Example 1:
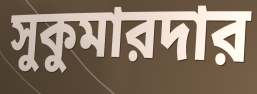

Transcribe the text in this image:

সুকুমারদার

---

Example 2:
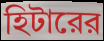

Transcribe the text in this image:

হিটারের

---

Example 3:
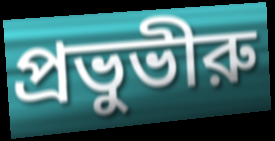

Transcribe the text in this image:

প্রভুভীরু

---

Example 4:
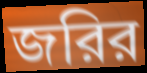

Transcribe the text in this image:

জরির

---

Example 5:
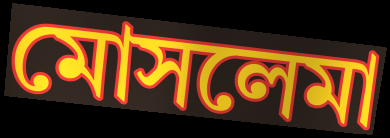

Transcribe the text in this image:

মোসলেমা